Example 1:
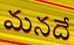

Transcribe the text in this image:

మనదే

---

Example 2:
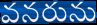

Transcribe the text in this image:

వనరును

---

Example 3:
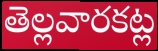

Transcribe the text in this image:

తెల్లవారకట్ల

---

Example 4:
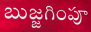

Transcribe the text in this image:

బుజ్జగింపూ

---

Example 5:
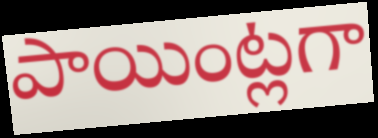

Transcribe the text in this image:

పాయింట్లగా